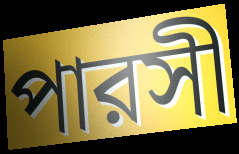
পারসী